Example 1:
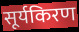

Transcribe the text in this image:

सूर्यकिरण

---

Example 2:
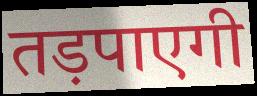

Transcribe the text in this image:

तड़पाएगी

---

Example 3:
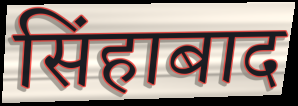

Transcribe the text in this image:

सिंहाबाद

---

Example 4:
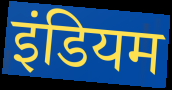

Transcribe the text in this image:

इंडियम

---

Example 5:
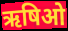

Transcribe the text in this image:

ऋषिओ